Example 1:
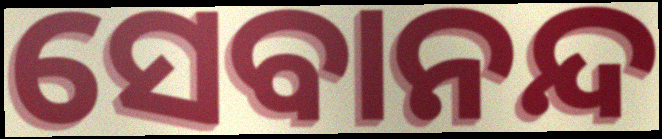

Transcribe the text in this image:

ସେବାନନ୍ଦ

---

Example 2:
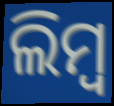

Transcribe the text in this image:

ଲିମ୍ବ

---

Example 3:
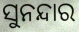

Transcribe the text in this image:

ସୁନନ୍ଦାର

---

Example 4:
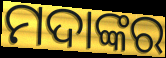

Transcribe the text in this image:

ମଦାଙ୍କର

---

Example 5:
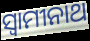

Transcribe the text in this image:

ସ୍ୱାମୀନାଥ